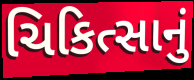
ચિકિત્સાનું